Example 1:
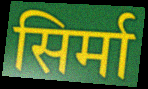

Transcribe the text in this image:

सिर्मा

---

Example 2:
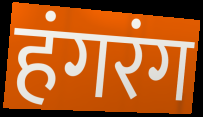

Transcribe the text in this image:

हंगरंग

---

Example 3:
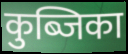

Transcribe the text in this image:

कुब्जिका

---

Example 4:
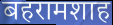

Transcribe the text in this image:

बहरामशाह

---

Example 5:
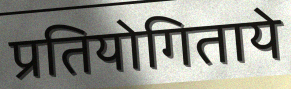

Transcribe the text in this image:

प्रतियोगिताये